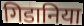
गिडानिया